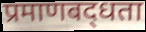
प्रमाणबद्धता